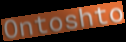
Ontoshto